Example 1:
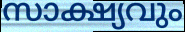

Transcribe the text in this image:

സാക്ഷ്യവും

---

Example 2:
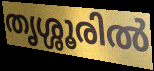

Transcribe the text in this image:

തൃശ്ശൂരിൽ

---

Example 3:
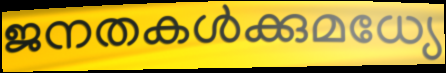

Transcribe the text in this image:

ജനതകൾക്കുമധ്യേ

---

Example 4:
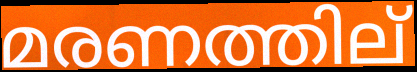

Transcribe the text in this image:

മരണത്തില്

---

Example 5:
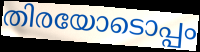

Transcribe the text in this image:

തിരയോടൊപ്പം